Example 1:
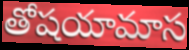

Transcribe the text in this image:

తోషయామాస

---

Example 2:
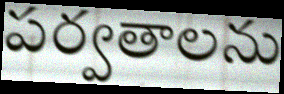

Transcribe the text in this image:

పర్వతాలను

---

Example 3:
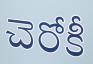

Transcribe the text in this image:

చెరోకీ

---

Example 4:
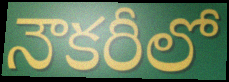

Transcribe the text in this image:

నౌకరీలో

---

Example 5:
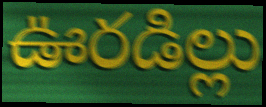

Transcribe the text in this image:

ఊరడిల్లు